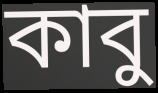
কাবু